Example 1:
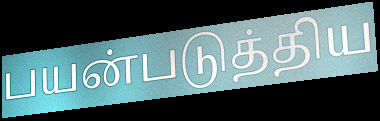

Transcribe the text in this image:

பயன்படுத்திய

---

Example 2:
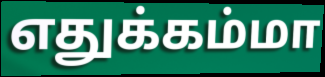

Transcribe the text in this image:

எதுக்கம்மா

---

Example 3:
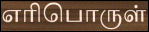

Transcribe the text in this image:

எரிபொருள்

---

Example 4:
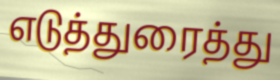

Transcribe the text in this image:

எடுத்துரைத்து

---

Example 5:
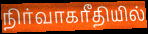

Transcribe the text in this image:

நிர்வாகரீதியில்